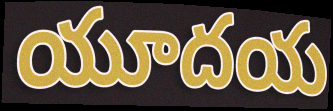
యూదయ